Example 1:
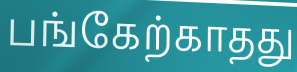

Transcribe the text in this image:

பங்கேற்காதது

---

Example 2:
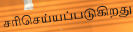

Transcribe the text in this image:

சரிசெய்யப்படுகிறது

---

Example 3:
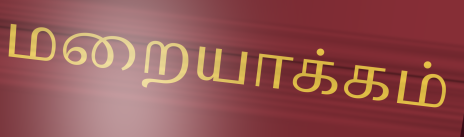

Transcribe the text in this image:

மறையாக்கம்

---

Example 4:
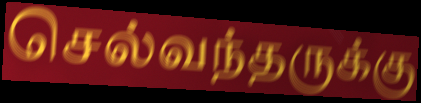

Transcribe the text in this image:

செல்வந்தருக்கு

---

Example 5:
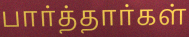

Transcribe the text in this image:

பார்த்தார்கள்